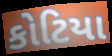
કોટિયા